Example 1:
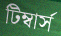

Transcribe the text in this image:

টিম্বার্স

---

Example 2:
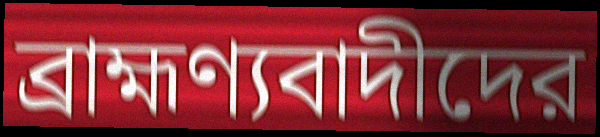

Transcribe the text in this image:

ব্রাহ্মণ্যবাদীদের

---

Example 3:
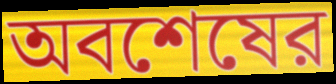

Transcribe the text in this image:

অবশেষের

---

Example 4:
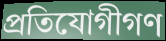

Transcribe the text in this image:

প্রতিযোগীগণ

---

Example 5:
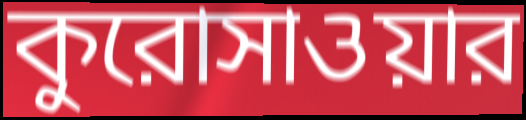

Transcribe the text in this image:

কুরোসাওয়ার